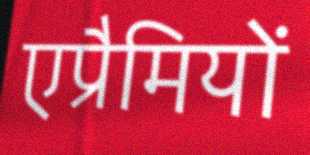
एप्रैमियों